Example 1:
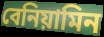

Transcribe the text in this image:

বেনিয়ামিন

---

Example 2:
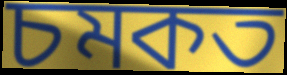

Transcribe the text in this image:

চমকত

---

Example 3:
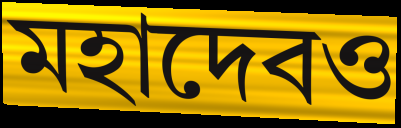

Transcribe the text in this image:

মহাদেবও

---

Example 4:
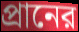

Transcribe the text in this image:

প্রানের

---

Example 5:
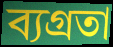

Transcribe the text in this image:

ব্যগ্রতা